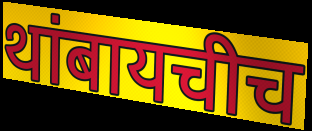
थांबायचीच